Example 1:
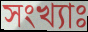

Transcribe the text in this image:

সংখ্যাঃ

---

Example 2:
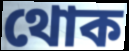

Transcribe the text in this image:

থোক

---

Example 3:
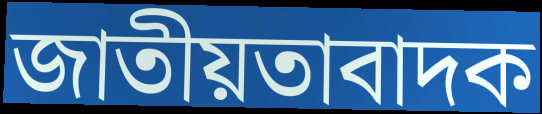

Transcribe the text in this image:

জাতীয়তাবাদক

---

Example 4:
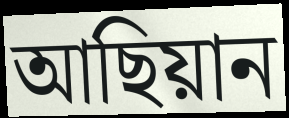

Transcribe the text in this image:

আছিয়ান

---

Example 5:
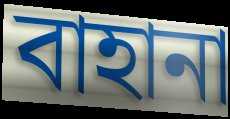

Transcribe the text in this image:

বাহানা